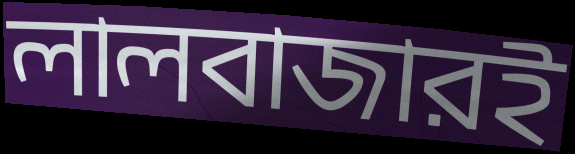
লালবাজারই